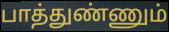
பாத்துண்ணும்